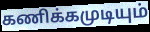
கணிக்கமுடியும்